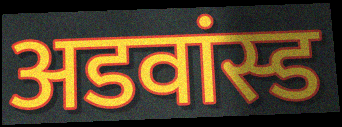
अडवांस्ड